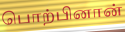
பொற்பினான்